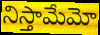
నిస్తామేమో